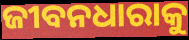
ଜୀବନଧାରାକୁ